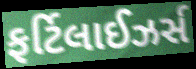
ફર્ટિલાઈઝર્સ